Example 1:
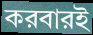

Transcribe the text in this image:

করবারই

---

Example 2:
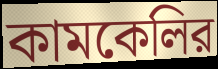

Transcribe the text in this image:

কামকেলির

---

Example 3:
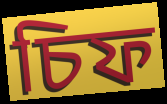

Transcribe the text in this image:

চিফ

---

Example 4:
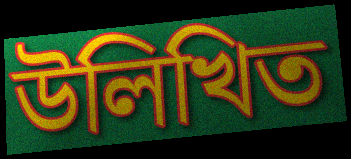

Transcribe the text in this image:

উলিখিত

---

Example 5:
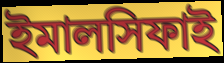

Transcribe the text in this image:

ইমালসিফাই